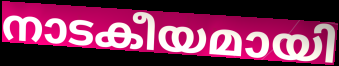
നാടകീയമായി